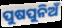
ପୁଷପୁନିଅଁ